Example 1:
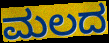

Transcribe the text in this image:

ಮಲದ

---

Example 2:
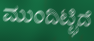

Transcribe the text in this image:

ಮುಂದಿಟ್ಟಿದೆ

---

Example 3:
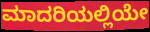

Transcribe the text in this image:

ಮಾದರಿಯಲ್ಲಿಯೇ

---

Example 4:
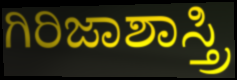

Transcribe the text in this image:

ಗಿರಿಜಾಶಾಸ್ತ್ರಿ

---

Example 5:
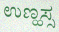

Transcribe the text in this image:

ಉಣ್ಹಸ್ಸ